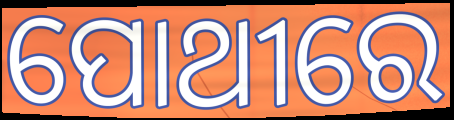
ପୋଥୀରେ